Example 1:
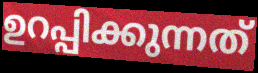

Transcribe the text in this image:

ഉറപ്പിക്കുന്നത്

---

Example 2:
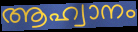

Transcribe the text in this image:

ആഹ്വാനം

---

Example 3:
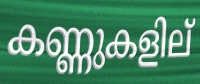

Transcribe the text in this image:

കണ്ണുകളില്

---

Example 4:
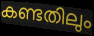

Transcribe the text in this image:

കണ്ടതിലും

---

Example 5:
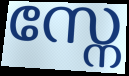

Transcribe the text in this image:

സ്നേ